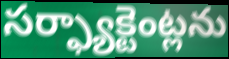
సర్ఫ్యాక్టెంట్లను